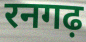
रनगढ़